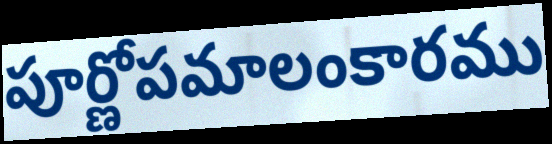
పూర్ణోపమాలంకారము